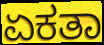
ಏಕತಾ